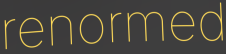
renormed